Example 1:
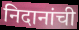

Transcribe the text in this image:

निदानांची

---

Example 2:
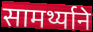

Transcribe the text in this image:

सामर्थ्याने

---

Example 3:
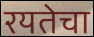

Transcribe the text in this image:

रयतेचा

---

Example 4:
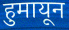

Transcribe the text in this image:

हुमायून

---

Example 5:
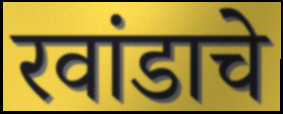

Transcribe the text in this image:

रवांडाचे